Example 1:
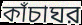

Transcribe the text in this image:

কাঁচাঘর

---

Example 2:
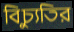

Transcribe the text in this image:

বিচ্যুতির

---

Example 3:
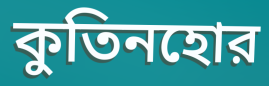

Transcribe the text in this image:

কুতিনহোর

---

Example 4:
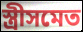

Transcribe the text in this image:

স্ত্রীসমেত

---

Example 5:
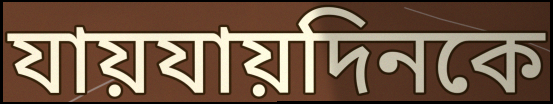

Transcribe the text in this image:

যায়যায়দিনকে